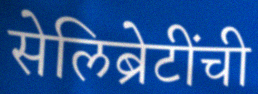
सेलिब्रेटींची